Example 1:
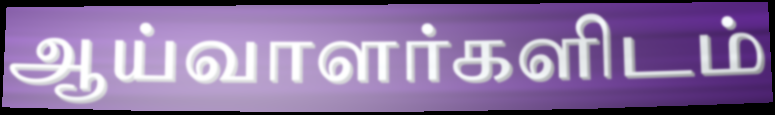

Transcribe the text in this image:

ஆய்வாளர்களிடம்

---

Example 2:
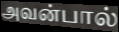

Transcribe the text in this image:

அவன்பால்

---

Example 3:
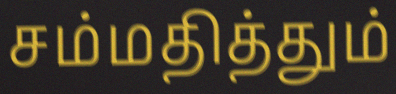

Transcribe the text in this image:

சம்மதித்தும்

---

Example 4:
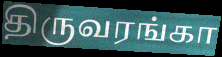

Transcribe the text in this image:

திருவரங்கா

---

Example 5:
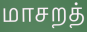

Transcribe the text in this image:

மாசறத்